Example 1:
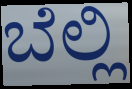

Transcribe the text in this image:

ಬೆಲ್ಲಿ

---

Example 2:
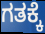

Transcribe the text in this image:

ಗತಕ್ಕೆ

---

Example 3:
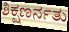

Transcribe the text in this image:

ಶಿಕ್ಷಣರ್ನತು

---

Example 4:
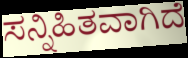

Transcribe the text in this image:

ಸನ್ನಿಹಿತವಾಗಿದೆ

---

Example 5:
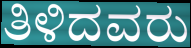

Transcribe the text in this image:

ತಿಳಿದವರು